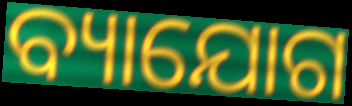
ବ୍ୟାଯୋଗ